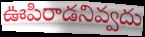
ఊపిరాడనివ్వదు